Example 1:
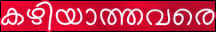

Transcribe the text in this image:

കഴിയാത്തവരെ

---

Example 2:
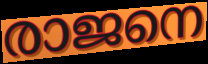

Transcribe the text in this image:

രാജനെ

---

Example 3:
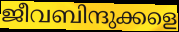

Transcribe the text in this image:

ജീവബിന്ദുക്കളെ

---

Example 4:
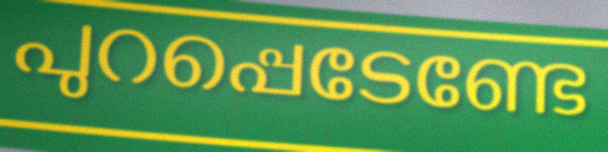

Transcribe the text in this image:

പുറപ്പെടേണ്ടേ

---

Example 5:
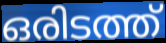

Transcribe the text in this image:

ഒരിടത്ത്